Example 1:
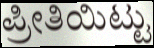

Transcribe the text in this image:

ಪ್ರೀತಿಯಿಟ್ಟು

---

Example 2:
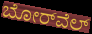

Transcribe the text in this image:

ಬೋರ್‌ವೆಲ್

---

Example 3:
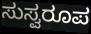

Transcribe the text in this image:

ಸುಸ್ವರೂಪ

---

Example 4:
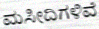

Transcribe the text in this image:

ಮಸೀದಿಗಳಿವೆ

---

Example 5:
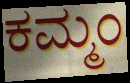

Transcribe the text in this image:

ಕಮ್ಮಂ